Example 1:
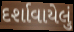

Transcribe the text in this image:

દર્શાવાયેલું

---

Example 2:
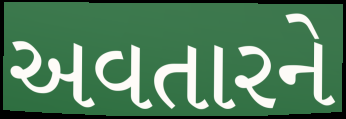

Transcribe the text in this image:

અવતારને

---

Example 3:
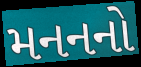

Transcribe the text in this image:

મનનનો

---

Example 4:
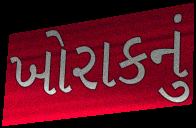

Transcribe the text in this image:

ખોરાકનું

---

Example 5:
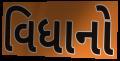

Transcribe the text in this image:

વિધાનો